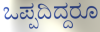
ಒಪ್ಪದಿದ್ದರೂ